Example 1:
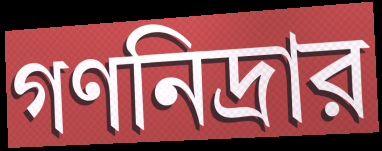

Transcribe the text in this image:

গণনিদ্রার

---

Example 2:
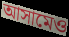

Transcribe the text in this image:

আসামেও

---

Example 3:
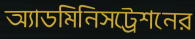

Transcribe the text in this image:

অ্যাডমিনিসট্রেশনের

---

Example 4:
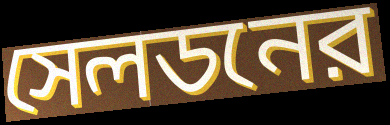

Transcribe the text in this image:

সেলডনের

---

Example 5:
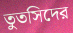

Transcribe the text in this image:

তুতসিদের